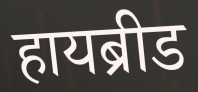
हायब्रीड